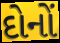
દોનોં